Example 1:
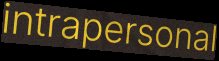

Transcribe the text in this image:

intrapersonal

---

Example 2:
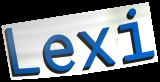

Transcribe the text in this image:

Lexi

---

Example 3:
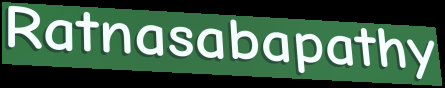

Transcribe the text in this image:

Ratnasabapathy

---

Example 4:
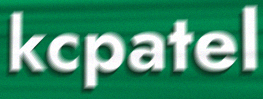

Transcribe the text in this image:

kcpatel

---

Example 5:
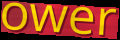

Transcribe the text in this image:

ower